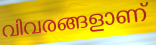
വിവരങ്ങളാണ്